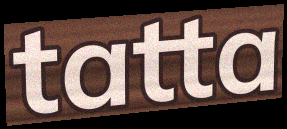
tatta